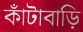
কাঁটাবাড়ি